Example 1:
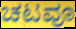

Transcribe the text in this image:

ಚಟವೂ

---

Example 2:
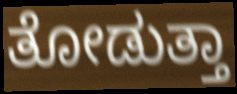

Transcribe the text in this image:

ತೋಡುತ್ತಾ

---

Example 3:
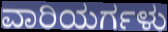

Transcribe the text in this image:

ವಾರಿಯರ್ಗಳು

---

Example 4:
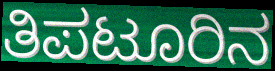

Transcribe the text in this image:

ತಿಪಟೂರಿನ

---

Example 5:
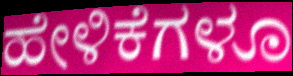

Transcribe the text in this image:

ಹೇಳಿಕೆಗಳೂ